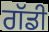
ਗੱਡੀ